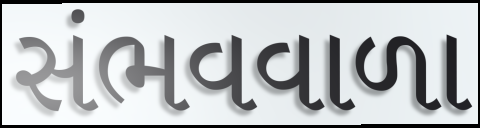
સંભવવાળા